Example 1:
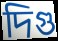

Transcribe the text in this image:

দিগু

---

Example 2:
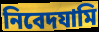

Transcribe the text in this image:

নিবেদযামি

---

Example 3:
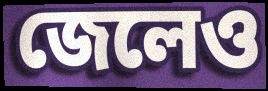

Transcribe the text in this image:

জেলেও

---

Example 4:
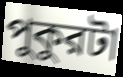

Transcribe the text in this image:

পুকুরটা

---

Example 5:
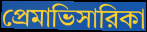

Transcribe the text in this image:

প্রেমাভিসারিকা